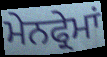
ਮੇਨਫ੍ਰੇਮਾਂ